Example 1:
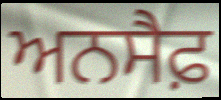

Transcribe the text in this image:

ਅਨਸੈਫ਼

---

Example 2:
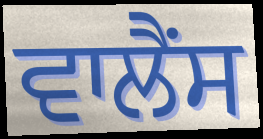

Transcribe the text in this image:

ਵਾਲੈਂਸ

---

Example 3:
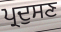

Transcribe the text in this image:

ਪ੍ਰਦੁਸਣ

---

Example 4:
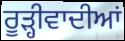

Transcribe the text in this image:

ਰੂੜ੍ਹੀਵਾਦੀਆਂ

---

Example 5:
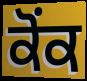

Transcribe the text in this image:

ਕੋਂਕ